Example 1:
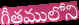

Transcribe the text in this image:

గీతములోని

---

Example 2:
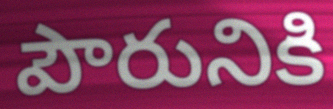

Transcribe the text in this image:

పౌరునికి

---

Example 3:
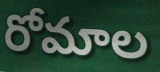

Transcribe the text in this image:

రోమాల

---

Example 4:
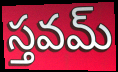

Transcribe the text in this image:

స్తవమ్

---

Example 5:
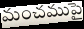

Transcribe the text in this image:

మంచముపై